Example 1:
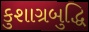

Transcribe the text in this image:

કુશાગ્રબુદ્ધિ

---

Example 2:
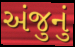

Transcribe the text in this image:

અંજુનું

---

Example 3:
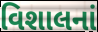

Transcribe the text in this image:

વિશાલનાં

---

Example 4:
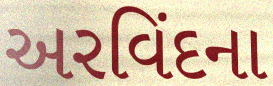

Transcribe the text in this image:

અરવિંદના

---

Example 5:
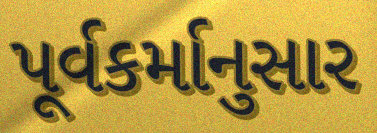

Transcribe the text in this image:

પૂર્વકર્માનુસાર